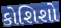
કોશિશો